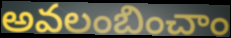
అవలంబించాం